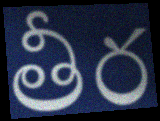
తీర